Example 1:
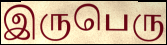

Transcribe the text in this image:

இருபெரு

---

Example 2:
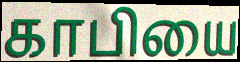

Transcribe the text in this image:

காபியை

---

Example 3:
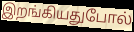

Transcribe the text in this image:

இறங்கியதுபோல்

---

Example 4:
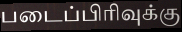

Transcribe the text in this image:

படைப்பிரிவுக்கு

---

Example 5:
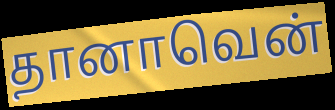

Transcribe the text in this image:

தானாவென்